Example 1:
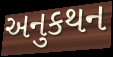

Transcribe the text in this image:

અનુકથન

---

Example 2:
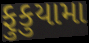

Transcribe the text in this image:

ફુકુયામા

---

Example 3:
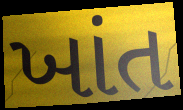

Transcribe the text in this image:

ખાંત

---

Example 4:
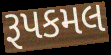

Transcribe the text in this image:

રૂપકમલ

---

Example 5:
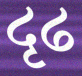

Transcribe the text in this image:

દૃઢ